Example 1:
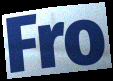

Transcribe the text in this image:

Fro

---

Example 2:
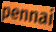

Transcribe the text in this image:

pennai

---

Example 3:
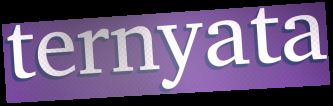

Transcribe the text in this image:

ternyata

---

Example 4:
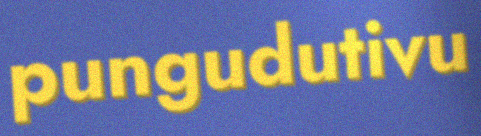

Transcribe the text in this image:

pungudutivu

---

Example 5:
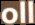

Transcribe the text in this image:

oll